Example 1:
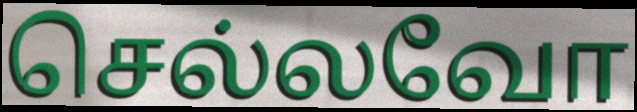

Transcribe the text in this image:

செல்லவோ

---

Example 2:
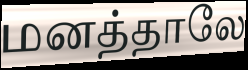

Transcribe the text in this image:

மனத்தாலே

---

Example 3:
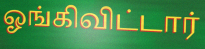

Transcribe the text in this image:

ஓங்கிவிட்டார்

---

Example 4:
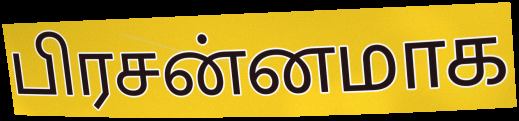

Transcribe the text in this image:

பிரசன்னமாக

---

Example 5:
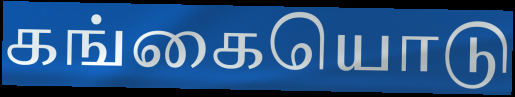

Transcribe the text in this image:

கங்கையொடு